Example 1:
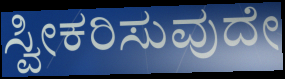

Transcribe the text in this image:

ಸ್ವೀಕರಿಸುವುದೇ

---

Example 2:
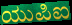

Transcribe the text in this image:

ಯುಪಿಐ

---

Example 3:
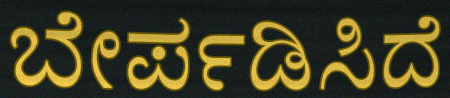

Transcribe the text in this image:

ಬೇರ್ಪಡಿಸಿದೆ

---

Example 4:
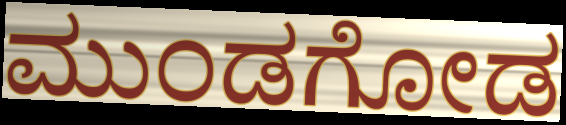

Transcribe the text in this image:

ಮುಂಡಗೋಡ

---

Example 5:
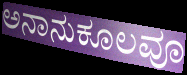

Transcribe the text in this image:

ಅನಾನುಕೂಲವೂ